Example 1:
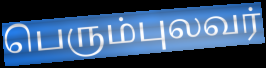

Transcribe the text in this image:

பெரும்புலவர்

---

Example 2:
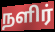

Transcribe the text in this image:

நளிர்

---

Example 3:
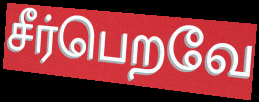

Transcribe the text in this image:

சீர்பெறவே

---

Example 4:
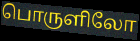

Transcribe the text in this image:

பொருளிலோ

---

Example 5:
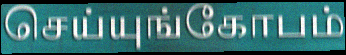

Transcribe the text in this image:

செய்யுங்கோபம்